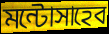
মন্টোসাহেব